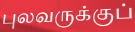
புலவருக்குப்